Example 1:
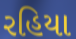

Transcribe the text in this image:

રહિયા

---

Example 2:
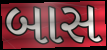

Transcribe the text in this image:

બાસ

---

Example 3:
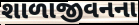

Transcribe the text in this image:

શાળાજીવનના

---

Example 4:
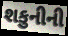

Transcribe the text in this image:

શકુનીની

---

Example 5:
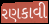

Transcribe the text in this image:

રણકાવી